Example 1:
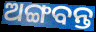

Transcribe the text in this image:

ଅଙ୍ଗବନ୍ତ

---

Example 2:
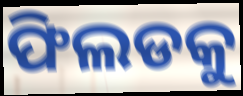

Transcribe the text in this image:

ଫିଲଡକୁ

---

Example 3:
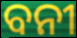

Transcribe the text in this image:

ବନୀ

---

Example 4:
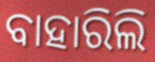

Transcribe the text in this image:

ବାହାରିଲି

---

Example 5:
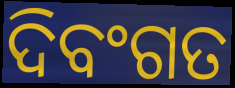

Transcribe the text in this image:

ଦିବଂଗତ